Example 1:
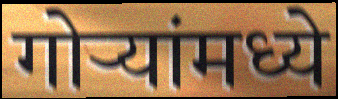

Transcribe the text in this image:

गोऱ्यांमध्ये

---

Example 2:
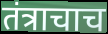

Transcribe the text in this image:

तंत्राचाच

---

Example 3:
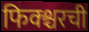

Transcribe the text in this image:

फिक्श्चरची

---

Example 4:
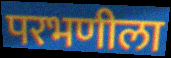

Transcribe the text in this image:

परभणीला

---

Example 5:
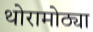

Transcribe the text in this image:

थोरामोठ्या